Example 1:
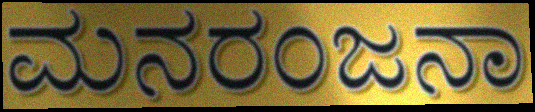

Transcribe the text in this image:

ಮನರಂಜನಾ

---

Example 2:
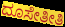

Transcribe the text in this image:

ದೂಸೇತೀತಿ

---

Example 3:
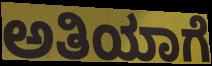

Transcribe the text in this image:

ಅತಿಯಾಗೆ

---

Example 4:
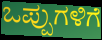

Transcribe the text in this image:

ಒಪ್ಪುಗಳಿಗೆ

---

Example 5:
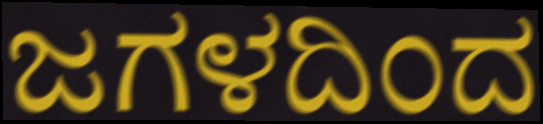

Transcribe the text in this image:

ಜಗಳದಿಂದ